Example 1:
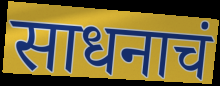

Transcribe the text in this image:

साधनाचं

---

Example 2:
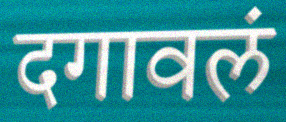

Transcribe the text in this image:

दगावलं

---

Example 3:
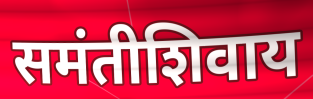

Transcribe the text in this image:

समंतीशिवाय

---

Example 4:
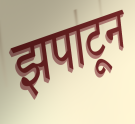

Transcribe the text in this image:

झपाटून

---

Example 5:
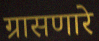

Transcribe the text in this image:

ग्रासणारे